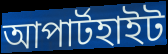
আপাৰ্টহাইট